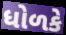
ધોળકે